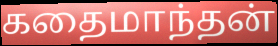
கதைமாந்தன்